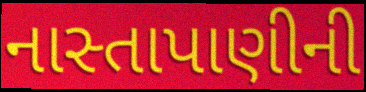
નાસ્તાપાણીની